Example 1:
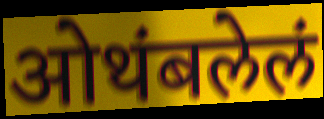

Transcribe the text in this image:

ओथंबलेलं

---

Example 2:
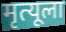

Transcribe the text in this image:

मृत्यूला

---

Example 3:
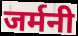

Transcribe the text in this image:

जर्मनी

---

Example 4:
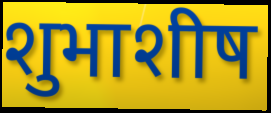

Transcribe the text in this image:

शुभाशीष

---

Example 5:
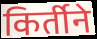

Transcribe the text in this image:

किर्तीने